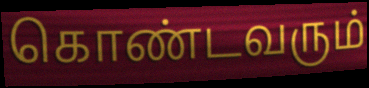
கொண்டவரும்